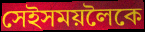
সেইসময়লৈকে